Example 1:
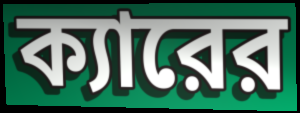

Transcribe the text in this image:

ক্যারের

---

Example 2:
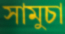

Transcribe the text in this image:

সামুচা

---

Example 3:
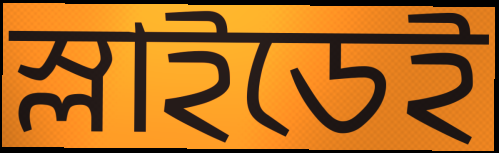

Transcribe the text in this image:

স্লাইডেই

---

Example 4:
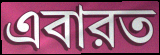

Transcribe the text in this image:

এবারত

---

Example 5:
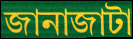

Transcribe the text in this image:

জানাজাটা